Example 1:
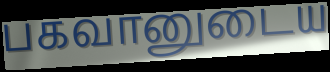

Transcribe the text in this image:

பகவானுடைய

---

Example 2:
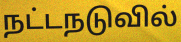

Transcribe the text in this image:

நட்டநடுவில்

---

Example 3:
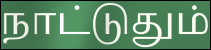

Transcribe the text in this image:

நாட்டுதும்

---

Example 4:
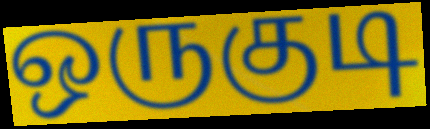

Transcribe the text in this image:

ஒருகுடி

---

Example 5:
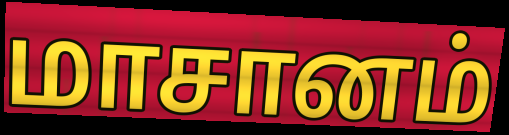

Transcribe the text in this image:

மாசானம்